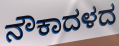
ನೌಕಾದಳದ